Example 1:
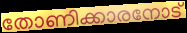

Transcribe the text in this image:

തോണിക്കാരനോട്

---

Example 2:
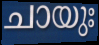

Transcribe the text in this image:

ചായുഃ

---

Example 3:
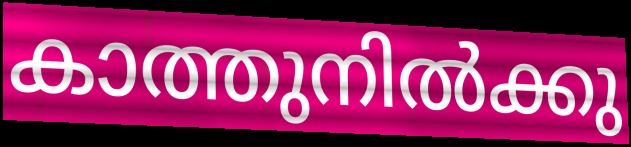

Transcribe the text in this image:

കാത്തുനിൽക്കു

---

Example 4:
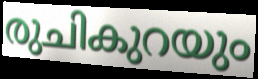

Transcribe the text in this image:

രുചികുറയും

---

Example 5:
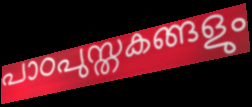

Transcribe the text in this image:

പാഠപുസ്തകങ്ങളും